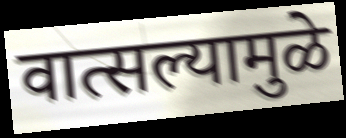
वात्सल्यामुळे